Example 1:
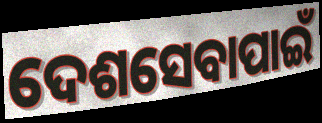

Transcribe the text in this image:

ଦେଶସେବାପାଇଁ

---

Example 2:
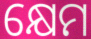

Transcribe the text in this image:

କ୍ଷେମ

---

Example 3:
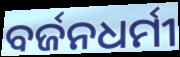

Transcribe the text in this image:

ବର୍ଜନଧର୍ମୀ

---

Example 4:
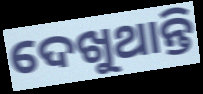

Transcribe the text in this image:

ଦେଖୁଥାନ୍ତି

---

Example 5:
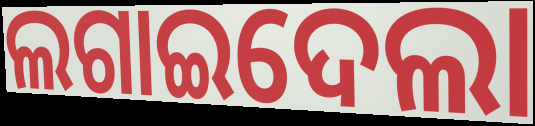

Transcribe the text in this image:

ଲଗାଇଦେଲା